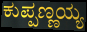
ಕುಪ್ಪಣ್ಣಯ್ಯ